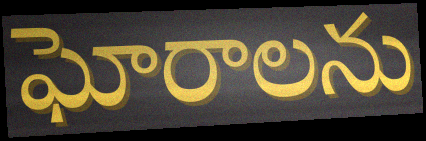
ఘోరాలను